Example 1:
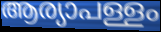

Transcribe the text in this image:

ആര്യാപള്ളം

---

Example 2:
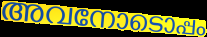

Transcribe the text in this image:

അവനോടൊപ്പം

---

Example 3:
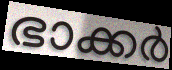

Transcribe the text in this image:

ഭാക്കർ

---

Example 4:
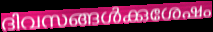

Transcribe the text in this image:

ദിവസങ്ങൾക്കുശേഷം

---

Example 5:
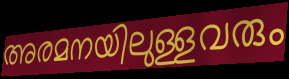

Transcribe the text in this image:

അരമനയിലുള്ളവരും